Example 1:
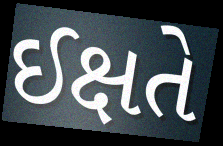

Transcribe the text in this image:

ઈક્ષતે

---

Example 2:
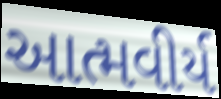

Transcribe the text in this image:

આત્મવીર્ય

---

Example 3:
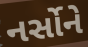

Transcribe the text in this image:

નર્સોને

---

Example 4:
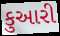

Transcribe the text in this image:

કુઆરી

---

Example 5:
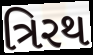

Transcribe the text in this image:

ત્રિરથ